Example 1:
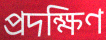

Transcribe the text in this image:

প্ৰদক্ষিণ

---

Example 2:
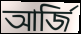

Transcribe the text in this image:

আৰ্জি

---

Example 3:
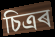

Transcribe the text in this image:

চিত্ৰৰ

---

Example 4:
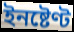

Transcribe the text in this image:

ইনষ্টেণ্ট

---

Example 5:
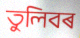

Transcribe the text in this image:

তুলিবৰ